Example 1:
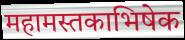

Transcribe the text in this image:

महामस्तकाभिषेक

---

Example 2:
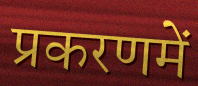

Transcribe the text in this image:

प्रकरणमें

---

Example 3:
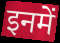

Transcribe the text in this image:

इनमें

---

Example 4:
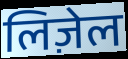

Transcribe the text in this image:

लिज़ेल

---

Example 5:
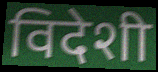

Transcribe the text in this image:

विदेशी